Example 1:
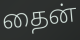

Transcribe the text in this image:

தைன்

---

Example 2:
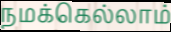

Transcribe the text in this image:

நமக்கெல்லாம்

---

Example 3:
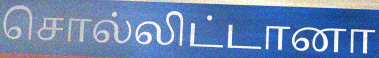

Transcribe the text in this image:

சொல்லிட்டானா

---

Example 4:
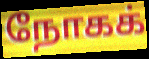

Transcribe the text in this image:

நோகக்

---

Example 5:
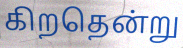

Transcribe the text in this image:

கிறதென்று